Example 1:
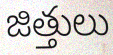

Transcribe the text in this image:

జిత్తులు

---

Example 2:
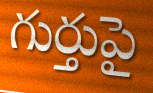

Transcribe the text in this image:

గుర్తుపై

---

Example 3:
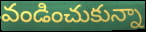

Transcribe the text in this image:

వండించుకున్నా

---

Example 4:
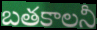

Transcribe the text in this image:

బతకాలనీ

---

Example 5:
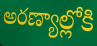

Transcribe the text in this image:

అరణ్యాల్లోకి